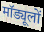
मॉड्यूलों